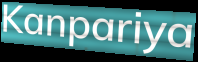
Kanpariya